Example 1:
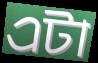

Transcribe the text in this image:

এটা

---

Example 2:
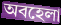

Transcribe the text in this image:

অবহেলা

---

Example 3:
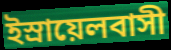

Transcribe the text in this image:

ইস্রায়েলবাসী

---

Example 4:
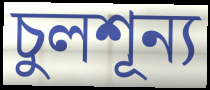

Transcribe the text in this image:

চুলশূন্য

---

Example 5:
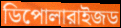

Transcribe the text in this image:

ডিপোলারাইজড